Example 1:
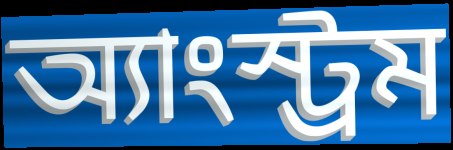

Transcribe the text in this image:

অ্যাংস্ট্রম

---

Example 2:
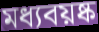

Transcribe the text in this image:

মধ্যবয়ষ্ক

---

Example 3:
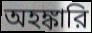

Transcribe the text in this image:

অহঙ্কারি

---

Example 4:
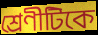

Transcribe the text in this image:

শ্রেণীটিকে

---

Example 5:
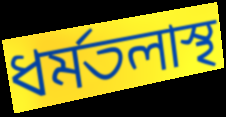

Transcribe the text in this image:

ধর্মতলাস্থ